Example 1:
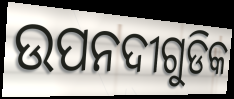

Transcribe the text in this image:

ଉପନଦୀଗୁଡିକ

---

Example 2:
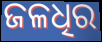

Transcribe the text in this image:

ଜଳଧିର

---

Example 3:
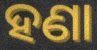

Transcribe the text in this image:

ହଣା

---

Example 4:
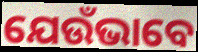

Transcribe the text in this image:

ଯେଉଁଭାବେ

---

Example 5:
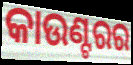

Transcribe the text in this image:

କାଉଣ୍ଟରର